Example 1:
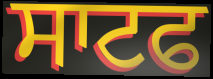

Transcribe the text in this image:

ਸਾਟਫ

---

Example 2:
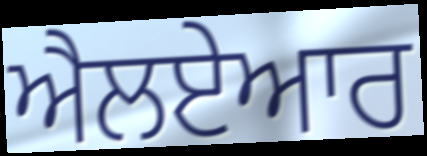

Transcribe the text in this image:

ਐਲਏਆਰ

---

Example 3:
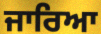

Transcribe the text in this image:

ਜਾਰਿਆ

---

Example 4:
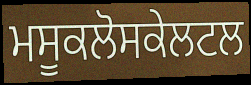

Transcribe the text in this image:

ਮਸੂਕਲੋਸਕੇਲਟਲ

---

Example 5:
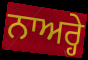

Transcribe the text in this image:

ਨਾਅਰ੍ਹੇ